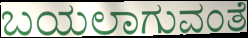
ಬಯಲಾಗುವಂತೆ